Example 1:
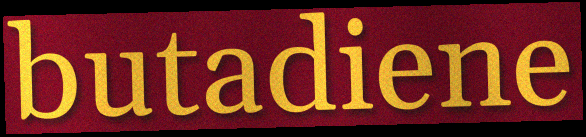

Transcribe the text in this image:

butadiene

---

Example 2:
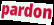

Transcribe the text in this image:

pardon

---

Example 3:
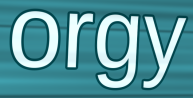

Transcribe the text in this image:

orgy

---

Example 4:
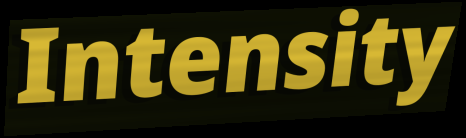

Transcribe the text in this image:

Intensity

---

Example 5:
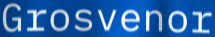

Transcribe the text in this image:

Grosvenor